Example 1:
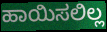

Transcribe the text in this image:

ಹಾಯಿಸಲಿಲ್ಲ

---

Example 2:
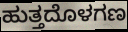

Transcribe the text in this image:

ಹುತ್ತದೊಳಗಣ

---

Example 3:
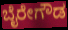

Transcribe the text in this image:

ಬೈರೇಗೌಡ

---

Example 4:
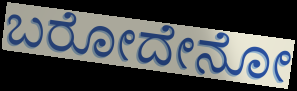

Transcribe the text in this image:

ಬರೋದೇನೋ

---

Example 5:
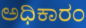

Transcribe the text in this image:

ಅಧಿಕಾರಂ